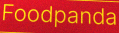
Foodpanda